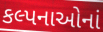
કલ્પનાઓનાં